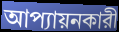
আপ্যায়নকারী